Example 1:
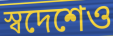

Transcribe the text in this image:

স্বদেশেও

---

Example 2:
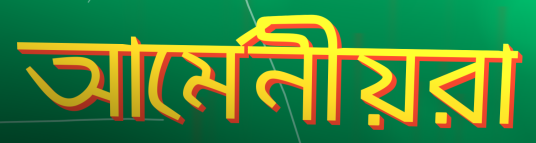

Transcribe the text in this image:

আর্মেনীয়রা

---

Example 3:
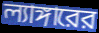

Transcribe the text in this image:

ল্যাঙ্গারের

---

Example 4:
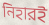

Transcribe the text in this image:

নিহারই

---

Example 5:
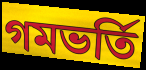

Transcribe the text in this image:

গমভর্তি